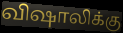
விஷாலிக்கு